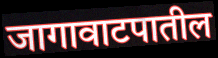
जागावाटपातील